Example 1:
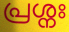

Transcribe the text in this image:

പ്രശ്നഃ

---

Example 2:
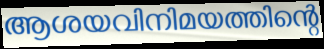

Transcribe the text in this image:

ആശയവിനിമയത്തിന്റെ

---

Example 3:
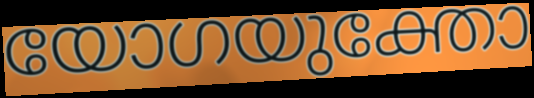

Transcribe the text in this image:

യോഗയുക്തോ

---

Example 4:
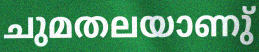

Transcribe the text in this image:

ചുമതലയാണു്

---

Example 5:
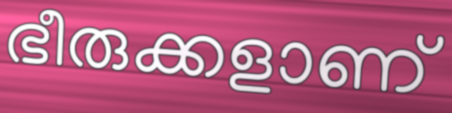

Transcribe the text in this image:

ഭീരുക്കളാണ്